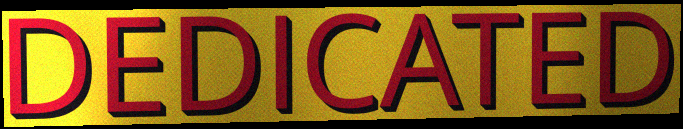
DEDICATED